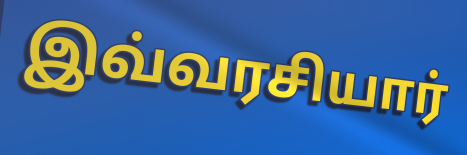
இவ்வரசியார்